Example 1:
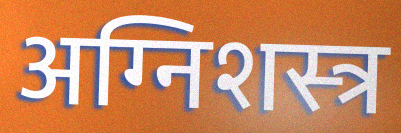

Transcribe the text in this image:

अग्निशस्त्र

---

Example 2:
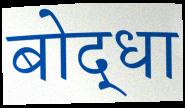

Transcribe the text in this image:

बोद्धा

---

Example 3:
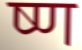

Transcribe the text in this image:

ष्ण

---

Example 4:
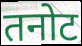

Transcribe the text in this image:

तनोट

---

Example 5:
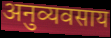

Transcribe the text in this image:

अनुव्यवसाय